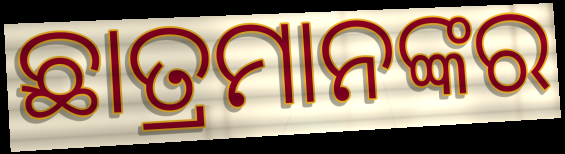
ଛାତ୍ରମାନଙ୍କର